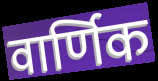
वार्णिक